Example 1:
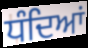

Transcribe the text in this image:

ਧੰਦਿਆਂ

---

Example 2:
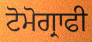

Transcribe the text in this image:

ਟੋਮੋਗ੍ਰਾਫੀ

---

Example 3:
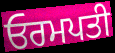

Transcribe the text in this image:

ਓਰਮਪਤੀ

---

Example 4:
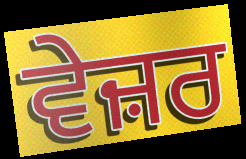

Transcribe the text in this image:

ਵੇਜ਼ਰ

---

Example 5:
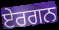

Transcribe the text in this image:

ਏਰਗਨ